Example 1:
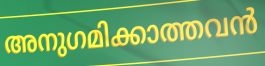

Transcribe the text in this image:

അനുഗമിക്കാത്തവൻ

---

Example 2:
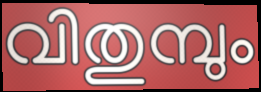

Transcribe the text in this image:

വിതുമ്പും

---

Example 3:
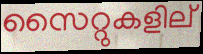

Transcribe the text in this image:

സൈറ്റുകളില്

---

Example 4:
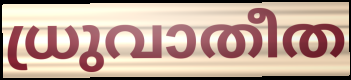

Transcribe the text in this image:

ധ്രുവാതീത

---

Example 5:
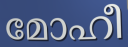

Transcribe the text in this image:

മോഹീ